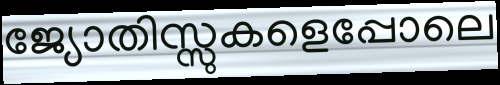
ജ്യോതിസ്സുകളെപ്പോലെ